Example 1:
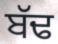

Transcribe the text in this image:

ਬੱਢ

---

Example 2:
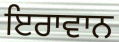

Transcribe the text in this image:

ਇਰਾਵਾਨ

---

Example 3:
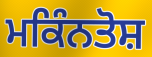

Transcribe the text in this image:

ਮਕਿੰਨਤੋਸ਼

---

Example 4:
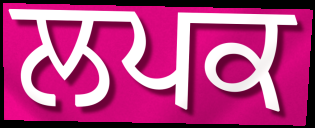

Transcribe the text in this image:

ਲਪਕ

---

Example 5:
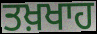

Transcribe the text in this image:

ਤਖ਼ਖਾਹ